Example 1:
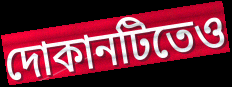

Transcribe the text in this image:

দোকানটিতেও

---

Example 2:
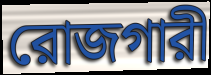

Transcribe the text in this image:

রোজগারী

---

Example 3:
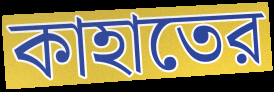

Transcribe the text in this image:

কাহাতের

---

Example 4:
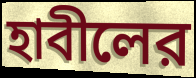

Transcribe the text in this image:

হাবীলের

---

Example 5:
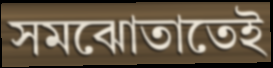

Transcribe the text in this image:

সমঝোতাতেই